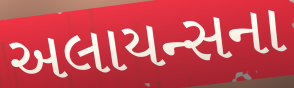
અલાયન્સના